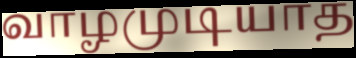
வாழமுடியாத